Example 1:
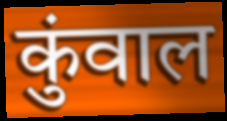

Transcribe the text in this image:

कुंवाल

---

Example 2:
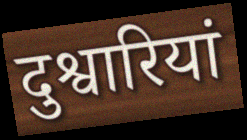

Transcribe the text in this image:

दुश्वारियां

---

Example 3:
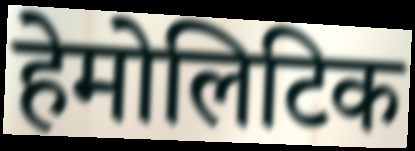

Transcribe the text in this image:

हेमोलिटिक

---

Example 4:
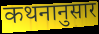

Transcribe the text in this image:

कथनानुसार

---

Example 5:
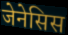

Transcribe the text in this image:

जेनेसिस